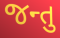
જન્તુ